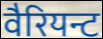
वैरियन्ट